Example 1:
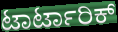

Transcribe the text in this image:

ಟಾರ್ಟಾರಿಕ್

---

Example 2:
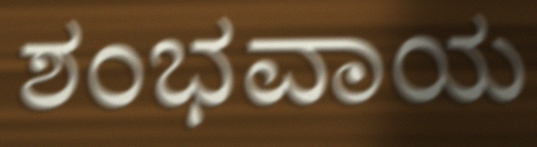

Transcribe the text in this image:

ಶಂಭವಾಯ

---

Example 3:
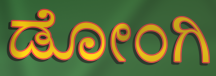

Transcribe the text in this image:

ಡೋಂಗಿ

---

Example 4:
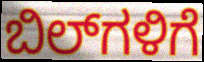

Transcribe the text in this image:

ಬಿಲ್‌ಗಳಿಗೆ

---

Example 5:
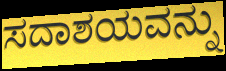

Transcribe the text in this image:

ಸದಾಶಯವನ್ನು